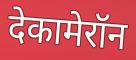
देकामेरॉन